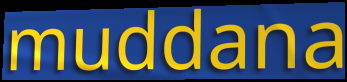
muddana